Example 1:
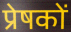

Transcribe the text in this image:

प्रेषकों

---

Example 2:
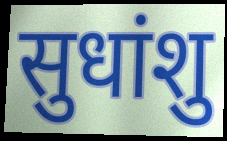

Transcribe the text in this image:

सुधांशु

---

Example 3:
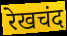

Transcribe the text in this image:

रेखचंद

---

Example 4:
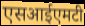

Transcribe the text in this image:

एसआईएमटी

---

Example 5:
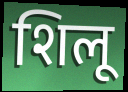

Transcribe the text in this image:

शिलू